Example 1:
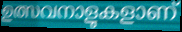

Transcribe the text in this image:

ഉത്സവനാളുകളാണ്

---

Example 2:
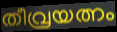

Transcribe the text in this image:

തീവ്രയത്നം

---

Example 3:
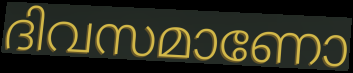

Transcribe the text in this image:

ദിവസമാണോ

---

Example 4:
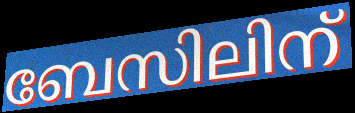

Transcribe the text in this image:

ബേസിലിന്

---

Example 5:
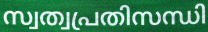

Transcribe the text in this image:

സ്വത്വപ്രതിസന്ധി